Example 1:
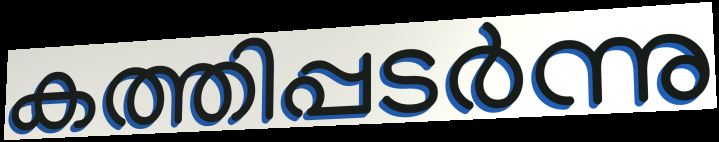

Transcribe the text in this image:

കത്തിപ്പടർന്നു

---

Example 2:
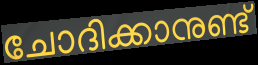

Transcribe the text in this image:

ചോദിക്കാനുണ്ട്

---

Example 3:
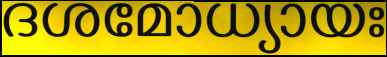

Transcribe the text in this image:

ദശമോധ്യായഃ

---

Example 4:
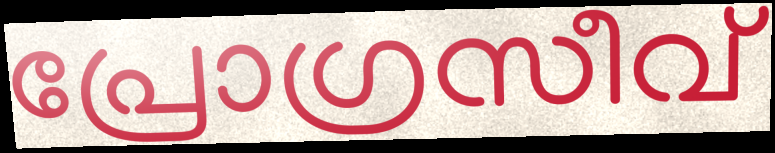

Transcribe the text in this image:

പ്രോഗ്രസീവ്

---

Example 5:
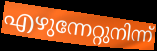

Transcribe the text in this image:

എഴുന്നേറ്റുനിന്ന്